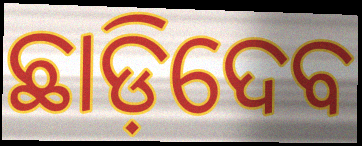
ଛାଡ଼ିଦେବ